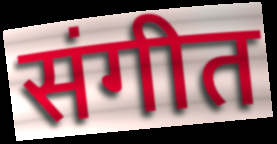
संगीत